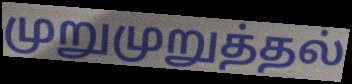
முறுமுறுத்தல்